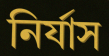
নির্যাস